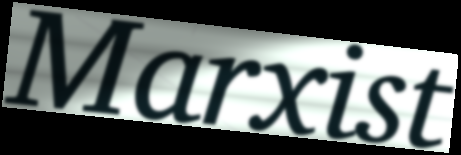
Marxist